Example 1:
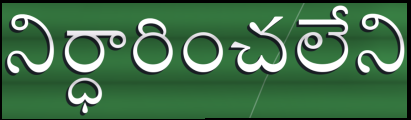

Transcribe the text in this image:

నిర్ధారించలేని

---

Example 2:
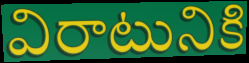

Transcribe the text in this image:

విరాటునికి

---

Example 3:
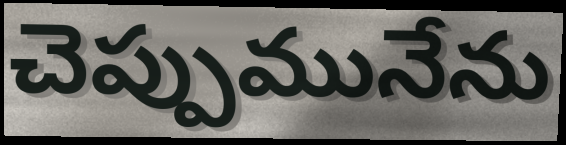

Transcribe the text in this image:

చెప్పుమునేను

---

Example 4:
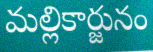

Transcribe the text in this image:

మల్లికార్జునం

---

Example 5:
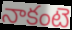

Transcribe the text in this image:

నాకంటె